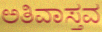
ಅತಿವಾಸ್ತವ